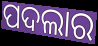
ପଦଲାର